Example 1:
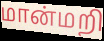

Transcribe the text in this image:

மான்மறி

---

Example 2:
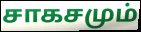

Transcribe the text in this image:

சாகசமும்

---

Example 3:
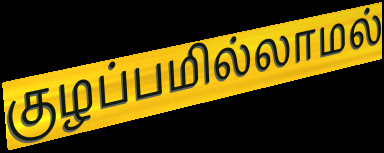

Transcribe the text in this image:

குழப்பமில்லாமல்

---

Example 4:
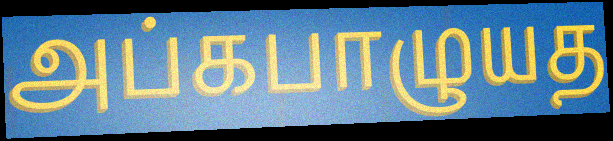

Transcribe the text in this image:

அப்கபாழுயத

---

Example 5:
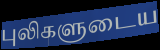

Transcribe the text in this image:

புலிகளுடைய